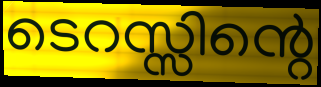
ടെറസ്സിന്റെ